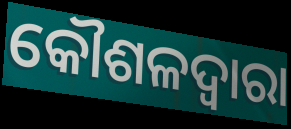
କୌଶଳଦ୍ୱାରା